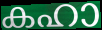
കഹാ